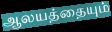
ஆலயத்தையும்